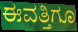
ಈವತ್ತಿಗೂ